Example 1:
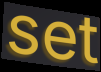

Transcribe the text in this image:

set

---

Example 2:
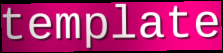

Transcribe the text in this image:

template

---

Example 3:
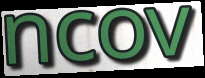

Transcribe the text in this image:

ncov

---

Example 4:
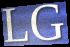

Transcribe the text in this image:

LG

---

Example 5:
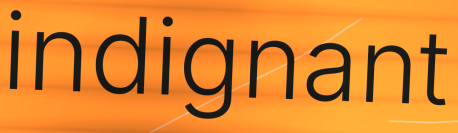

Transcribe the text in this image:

indignant